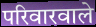
परिवारवाले